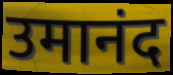
उमानंद